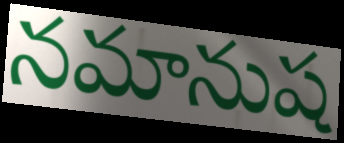
నమానుష